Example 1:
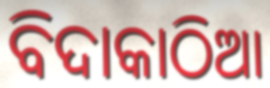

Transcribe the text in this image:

ବିଦାକାଠିଆ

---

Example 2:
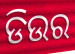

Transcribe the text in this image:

ଡିଉର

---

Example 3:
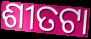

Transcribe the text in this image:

ଶୀତଟା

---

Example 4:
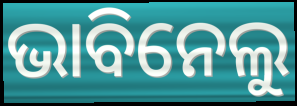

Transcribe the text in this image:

ଭାବିନେଲୁ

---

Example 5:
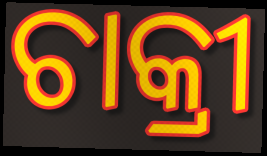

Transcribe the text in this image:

ଚାକ୍ରୀ